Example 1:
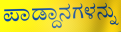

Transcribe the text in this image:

ಪಾಡ್ದಾನಗಳನ್ನು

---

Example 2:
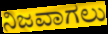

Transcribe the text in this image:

ನಿಜವಾಗಲು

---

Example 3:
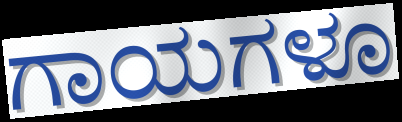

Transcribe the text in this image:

ಗಾಯಗಳೂ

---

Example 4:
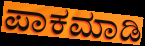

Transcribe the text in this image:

ಪಾಕಮಾಡಿ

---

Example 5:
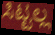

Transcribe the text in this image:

ಸಿಟ್ಟಲ್ಲ